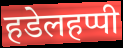
हडेलहप्पी